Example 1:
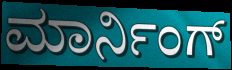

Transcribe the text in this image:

ಮಾರ್ನಿಂಗ್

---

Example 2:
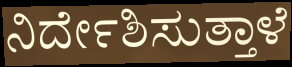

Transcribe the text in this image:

ನಿರ್ದೇಶಿಸುತ್ತಾಳೆ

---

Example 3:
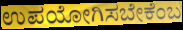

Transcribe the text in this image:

ಉಪಯೋಗಿಸಬೇಕೆಂಬ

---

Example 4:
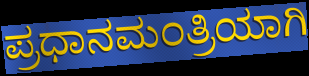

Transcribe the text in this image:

ಪ್ರಧಾನಮಂತ್ರಿಯಾಗಿ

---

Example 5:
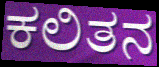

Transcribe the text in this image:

ಕಲಿತನ